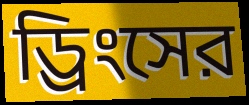
ড্রিংসের